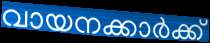
വായനക്കാർക്ക്